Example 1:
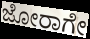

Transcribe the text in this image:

ಜೋರಾಗೇ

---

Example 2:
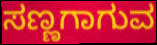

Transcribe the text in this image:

ಸಣ್ಣಗಾಗುವ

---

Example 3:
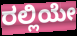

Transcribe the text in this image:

ರಲ್ಲಿಯೇ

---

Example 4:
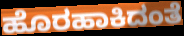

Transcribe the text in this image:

ಹೊರಹಾಕಿದಂತೆ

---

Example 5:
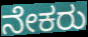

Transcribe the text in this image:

ನೇಕರು